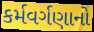
કર્મવર્ગણાનો